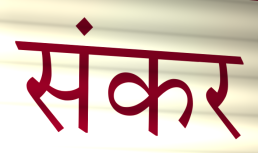
संकर